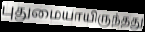
புதுமையாயிருந்தது